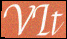
VIt